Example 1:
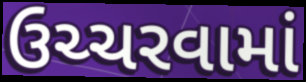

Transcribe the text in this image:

ઉચ્ચરવામાં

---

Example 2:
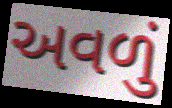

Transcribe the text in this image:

અવળું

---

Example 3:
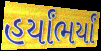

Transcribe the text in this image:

હર્યાંભર્યાં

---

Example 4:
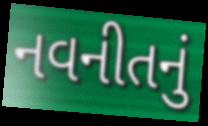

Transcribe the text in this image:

નવનીતનું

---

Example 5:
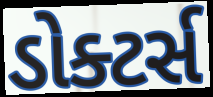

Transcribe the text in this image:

ડોક્ટર્સ